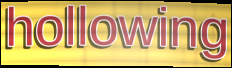
hollowing